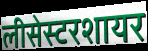
लीसेस्टरशायर